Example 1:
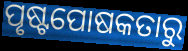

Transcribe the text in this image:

ପୃଷ୍ଟପୋଷକତାରୁ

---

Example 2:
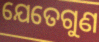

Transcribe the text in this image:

ଯେତେଗୁଣ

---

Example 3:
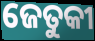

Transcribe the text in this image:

ଜେତୁକୀ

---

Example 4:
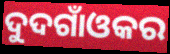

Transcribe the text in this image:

ଦୁଦଗାଁଓକର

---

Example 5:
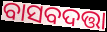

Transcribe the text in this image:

ବାସବଦତ୍ତା